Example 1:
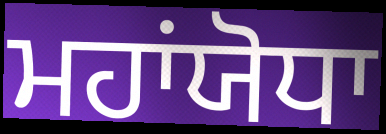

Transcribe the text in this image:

ਮਹਾਂਯੋਧਾ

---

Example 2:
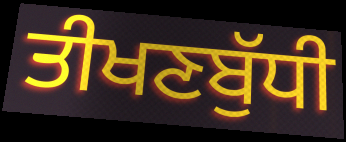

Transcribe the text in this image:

ਤੀਖਣਬੁੱਧੀ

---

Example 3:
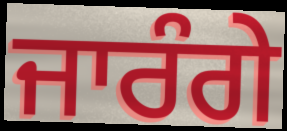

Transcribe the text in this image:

ਜਾਰੰਗੇ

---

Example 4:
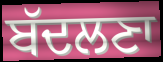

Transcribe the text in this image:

ਬੱਦਲਣਾ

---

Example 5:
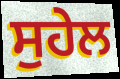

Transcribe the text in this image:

ਸੁਹੇਲ